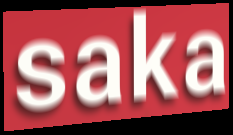
saka